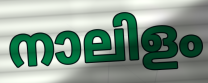
നാലിളം